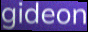
gideon